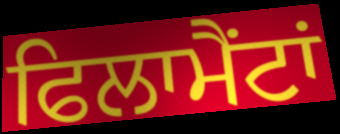
ਫਿਲਾਮੈਂਟਾਂ